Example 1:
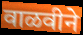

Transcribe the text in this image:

वाळवीने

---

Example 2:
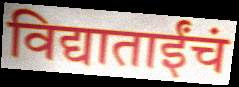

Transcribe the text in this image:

विद्याताईंचं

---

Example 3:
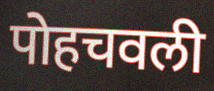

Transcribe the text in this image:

पोहचवली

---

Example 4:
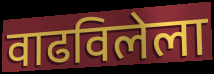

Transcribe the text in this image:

वाढविलेला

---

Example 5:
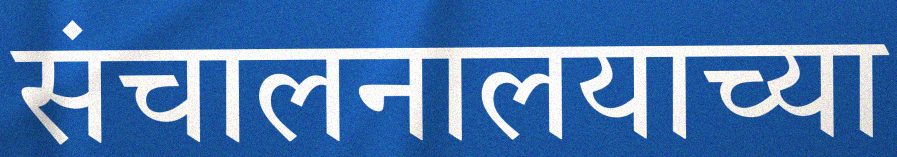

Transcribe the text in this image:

संचालनालयाच्या